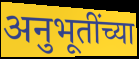
अनुभूतींच्या